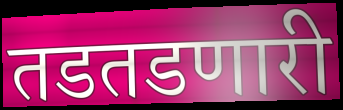
तडतडणारी